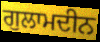
ਗੁਲਾਮਦੀਨ